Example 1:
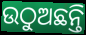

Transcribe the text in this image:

ଉଠୁଅଛନ୍ତି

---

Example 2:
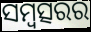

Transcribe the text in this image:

ସମ୍ବତ୍ସରର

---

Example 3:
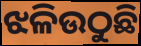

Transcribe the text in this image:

ଝଳିଉଠୁଛି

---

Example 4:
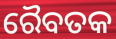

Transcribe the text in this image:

ରୈବତକ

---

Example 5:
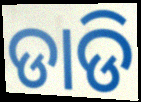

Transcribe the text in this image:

ଡାଡି